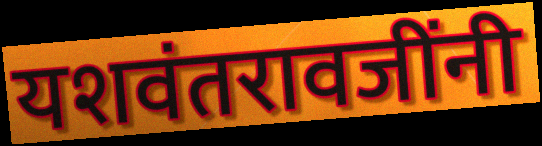
यशवंतरावजींनी